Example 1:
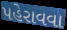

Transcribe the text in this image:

પહેરાવવા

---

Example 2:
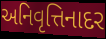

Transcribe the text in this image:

અનિવૃત્તિનાદર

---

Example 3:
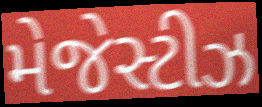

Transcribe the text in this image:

મેજેસ્ટીઝ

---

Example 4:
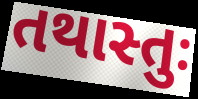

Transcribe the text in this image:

તથાસ્તુઃ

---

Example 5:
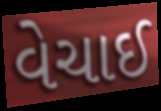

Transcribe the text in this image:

વેચાઈ